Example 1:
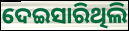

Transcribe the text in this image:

ଦେଇସାରିଥିଲି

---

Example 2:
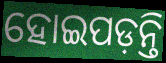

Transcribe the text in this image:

ହୋଇପଡ଼ନ୍ତି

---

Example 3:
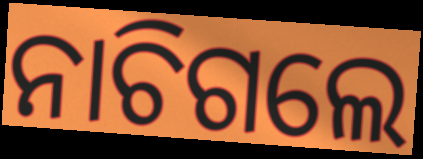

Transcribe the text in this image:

ନାଚିଗଲେ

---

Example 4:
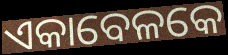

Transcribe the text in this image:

ଏକାବେଳକେ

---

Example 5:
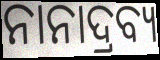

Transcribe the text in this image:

ନାନାଦ୍ରବ୍ୟ